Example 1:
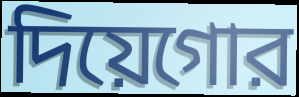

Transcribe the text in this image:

দিয়েগোর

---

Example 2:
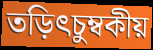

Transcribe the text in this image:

তড়িৎচুম্বকীয়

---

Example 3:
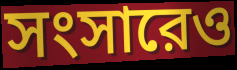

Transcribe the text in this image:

সংসারেও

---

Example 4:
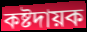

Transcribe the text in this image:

কষ্টদায়ক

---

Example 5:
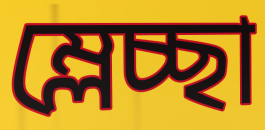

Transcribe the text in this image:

ম্লেচ্ছা